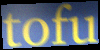
tofu